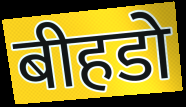
बीहडो